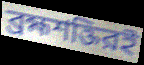
ব্রহ্মশক্তিরই